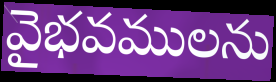
వైభవములను